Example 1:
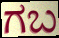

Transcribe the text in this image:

ಗಬ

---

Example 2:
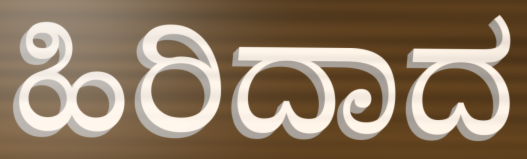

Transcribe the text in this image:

ಹಿರಿದಾದ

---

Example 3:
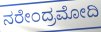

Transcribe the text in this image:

ನರೇಂದ್ರಮೋದಿ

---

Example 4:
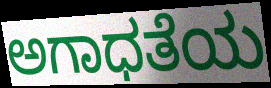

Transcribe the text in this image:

ಅಗಾಧತೆಯ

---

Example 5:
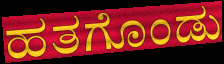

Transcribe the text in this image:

ಹತಗೊಂಡು